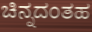
ಚಿನ್ನದಂತಹ